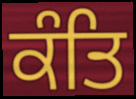
ਕੰਤਿ